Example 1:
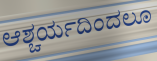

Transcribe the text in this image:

ಆಶ್ಚರ್ಯದಿಂದಲೂ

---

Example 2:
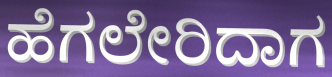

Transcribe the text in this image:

ಹೆಗಲೇರಿದಾಗ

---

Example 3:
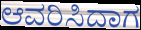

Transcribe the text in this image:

ಆವರಿಸಿದಾಗ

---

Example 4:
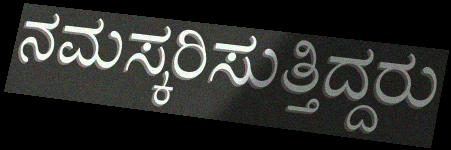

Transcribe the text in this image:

ನಮಸ್ಕರಿಸುತ್ತಿದ್ದರು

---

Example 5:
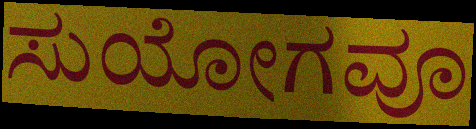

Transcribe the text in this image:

ಸುಯೋಗವೂ